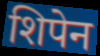
शिपेन